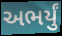
અભર્યું